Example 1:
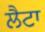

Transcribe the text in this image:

ਲੈਟਾ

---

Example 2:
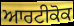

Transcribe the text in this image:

ਆਰਟੀਕੋਕ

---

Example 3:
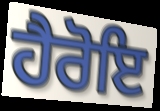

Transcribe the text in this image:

ਹੈਰੋਇ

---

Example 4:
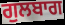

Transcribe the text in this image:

ਗੁਲਬਾਗ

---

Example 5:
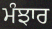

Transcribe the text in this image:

ਮੰਝਾਰ